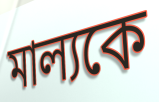
মাল্যকে